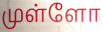
முள்ளோ